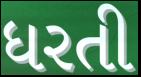
ધરતી